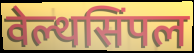
वेल्थसिंपल